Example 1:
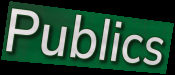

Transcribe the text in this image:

Publics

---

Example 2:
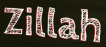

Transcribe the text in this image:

Zillah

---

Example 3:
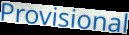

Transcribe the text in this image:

Provisional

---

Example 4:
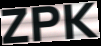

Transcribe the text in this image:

ZPK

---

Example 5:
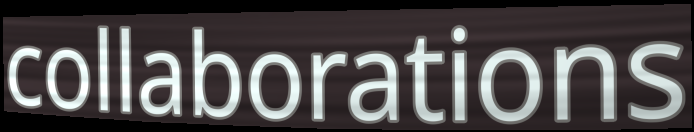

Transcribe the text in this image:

collaborations